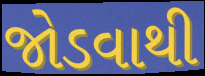
જોડવાથી